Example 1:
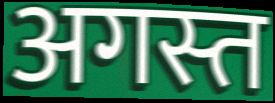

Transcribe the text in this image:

अगस्‍त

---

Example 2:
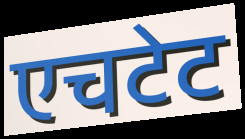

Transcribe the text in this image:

एचटेट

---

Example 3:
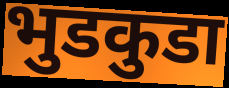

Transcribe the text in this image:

भुडकुडा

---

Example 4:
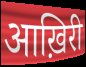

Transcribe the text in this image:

आख़िरी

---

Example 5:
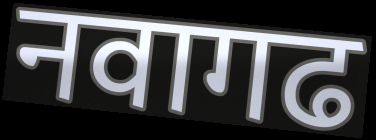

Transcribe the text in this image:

नवागढ